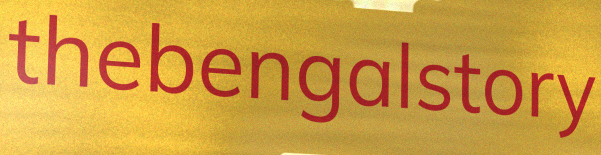
thebengalstory